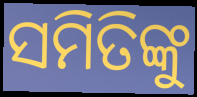
ସମିତିଙ୍କୁ